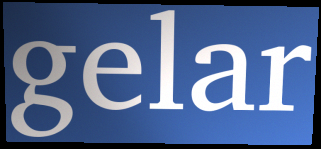
gelar